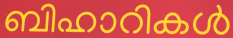
ബിഹാറികൾ